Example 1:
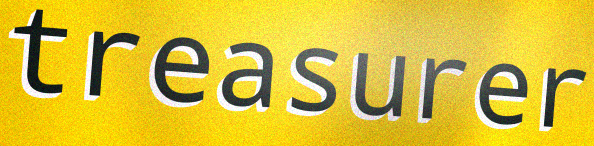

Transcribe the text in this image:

treasurer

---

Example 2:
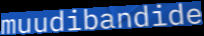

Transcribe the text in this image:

muudibandide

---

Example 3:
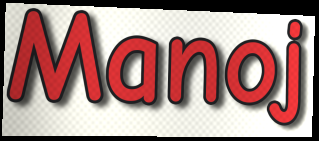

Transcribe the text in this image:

Manoj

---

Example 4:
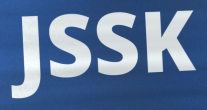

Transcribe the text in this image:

JSSK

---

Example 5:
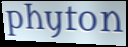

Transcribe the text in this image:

phyton